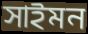
সাইমন